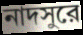
নাদসুরে